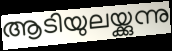
ആടിയുലയ്ക്കുന്നു